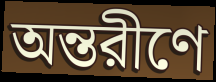
অন্তরীণে